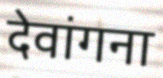
देवांगना